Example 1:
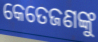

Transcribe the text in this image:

କେତେଜଣଙ୍କୁ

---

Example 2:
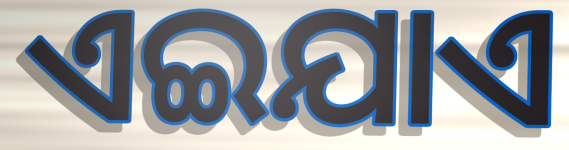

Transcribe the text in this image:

ଏଇଯାଏ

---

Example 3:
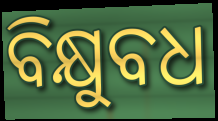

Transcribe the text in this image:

ବିକ୍ଷୁବଧ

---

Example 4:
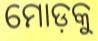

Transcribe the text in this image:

ମୋଡ଼କୁ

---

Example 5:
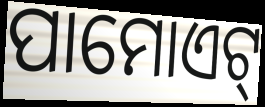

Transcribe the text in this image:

ପାମୋଏଟ୍